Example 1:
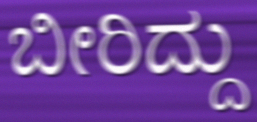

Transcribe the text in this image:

ಬೀರಿದ್ದು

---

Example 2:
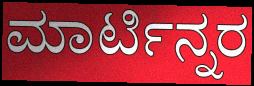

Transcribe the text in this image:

ಮಾರ್ಟಿನ್ನರ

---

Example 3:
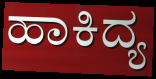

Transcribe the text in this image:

ಹಾಕಿದ್ಯ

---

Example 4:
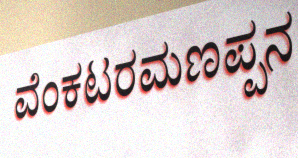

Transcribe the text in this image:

ವೆಂಕಟರಮಣಪ್ಪನ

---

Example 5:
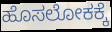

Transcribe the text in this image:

ಹೊಸಲೋಕಕ್ಕೆ